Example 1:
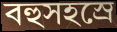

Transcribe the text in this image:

বহুসহস্রে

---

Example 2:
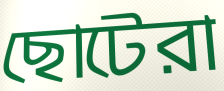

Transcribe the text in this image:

ছোটেরা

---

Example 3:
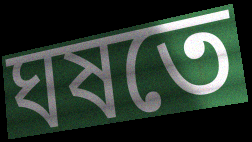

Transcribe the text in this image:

ঘষতে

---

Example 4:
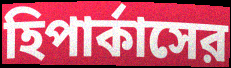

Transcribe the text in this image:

হিপার্কাসের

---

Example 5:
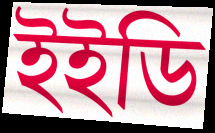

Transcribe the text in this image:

ইইডি